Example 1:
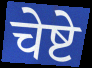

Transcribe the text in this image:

चेष्टे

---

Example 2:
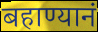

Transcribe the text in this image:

बहाण्यानं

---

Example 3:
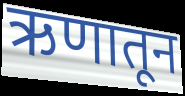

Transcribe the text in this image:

ऋणातून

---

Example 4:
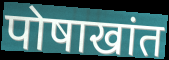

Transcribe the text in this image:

पोषाखांत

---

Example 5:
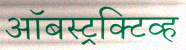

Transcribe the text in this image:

ऑबस्ट्रक्टिव्ह